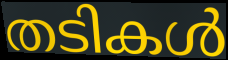
തടികൾ